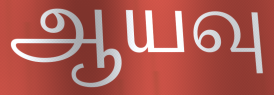
ஆயவு